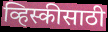
व्हिस्कीसाठी